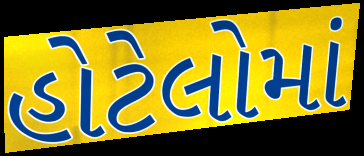
હોટેલોમાં